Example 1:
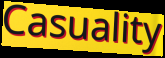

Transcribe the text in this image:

Casuality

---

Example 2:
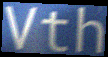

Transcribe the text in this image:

Vth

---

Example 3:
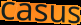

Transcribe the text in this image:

casus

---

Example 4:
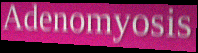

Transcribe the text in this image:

Adenomyosis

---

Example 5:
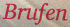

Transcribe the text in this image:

Brufen